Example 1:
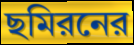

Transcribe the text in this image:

ছমিরনের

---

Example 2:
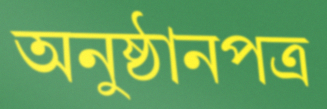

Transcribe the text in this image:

অনুষ্ঠানপত্র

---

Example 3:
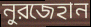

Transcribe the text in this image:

নুরজেহান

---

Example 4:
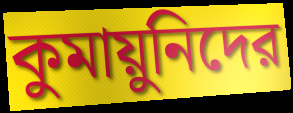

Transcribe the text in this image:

কুমায়ুনিদের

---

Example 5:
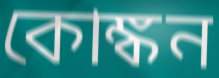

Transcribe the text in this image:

কোঙ্কন